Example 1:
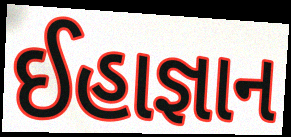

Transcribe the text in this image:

ઈહાજ્ઞાન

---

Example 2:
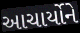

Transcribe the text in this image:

આચાર્યોને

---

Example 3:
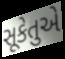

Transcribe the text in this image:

સૂકેતુએ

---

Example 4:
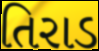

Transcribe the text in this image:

તિરાડ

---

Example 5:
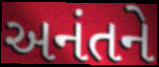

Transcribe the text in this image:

અનંતને